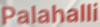
Palahalli